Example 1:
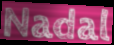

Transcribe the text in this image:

Nadal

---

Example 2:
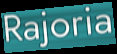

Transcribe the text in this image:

Rajoria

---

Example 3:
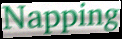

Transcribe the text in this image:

Napping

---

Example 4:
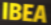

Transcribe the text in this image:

IBEA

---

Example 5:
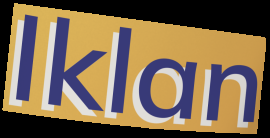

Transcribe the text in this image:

Iklan